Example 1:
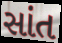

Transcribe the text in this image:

સાંત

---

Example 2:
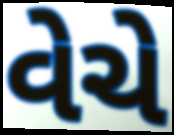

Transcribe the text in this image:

વેચે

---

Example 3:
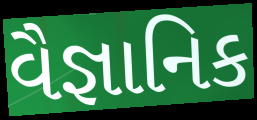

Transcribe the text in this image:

વૈજ્ઞાનિક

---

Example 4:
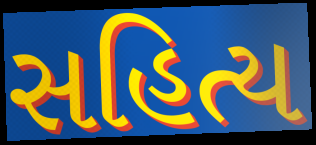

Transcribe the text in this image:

સહિત્ય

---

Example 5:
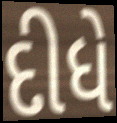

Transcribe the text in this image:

દીધે